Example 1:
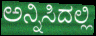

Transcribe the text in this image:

ಅನ್ನಿಸಿದಲ್ಲಿ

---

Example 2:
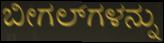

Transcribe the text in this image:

ಬೀಗಲ್‌ಗಳನ್ನು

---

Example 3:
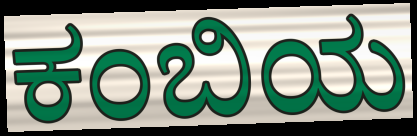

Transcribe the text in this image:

ಕಂಬಿಯ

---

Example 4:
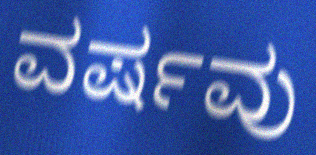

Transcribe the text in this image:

ವರ್ಷವು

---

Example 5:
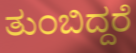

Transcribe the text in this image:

ತುಂಬಿದ್ದರೆ